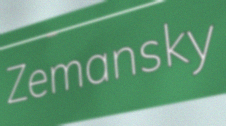
Zemansky